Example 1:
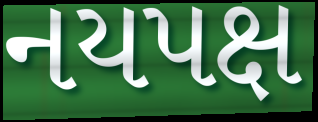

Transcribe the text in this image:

નયપક્ષ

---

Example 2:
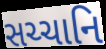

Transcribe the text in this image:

સચ્ચાનિ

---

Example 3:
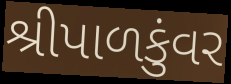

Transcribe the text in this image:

શ્રીપાળકુંવર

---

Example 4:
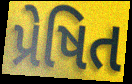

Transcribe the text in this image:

પ્રેષિત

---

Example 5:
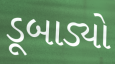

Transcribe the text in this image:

ડૂબાડ્યો